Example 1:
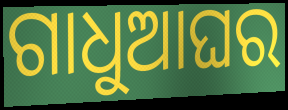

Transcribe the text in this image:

ଗାଧୁଆଘର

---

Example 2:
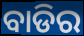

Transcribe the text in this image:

ବାଡିର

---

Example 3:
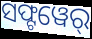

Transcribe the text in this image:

ସଫ୍ଟୱେର୍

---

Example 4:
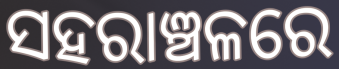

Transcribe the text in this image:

ସହରାଞ୍ଚଳରେ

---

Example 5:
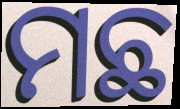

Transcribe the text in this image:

ମଛ